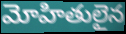
మోహితులైన